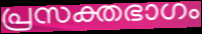
പ്രസക്തഭാഗം